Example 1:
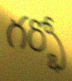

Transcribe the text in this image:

గర్భో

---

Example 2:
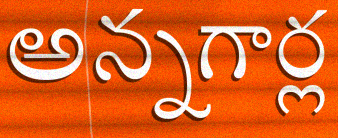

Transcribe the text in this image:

అన్నగార్ల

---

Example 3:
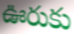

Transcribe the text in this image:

ఊరుకు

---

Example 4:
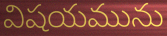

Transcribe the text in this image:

విషయమును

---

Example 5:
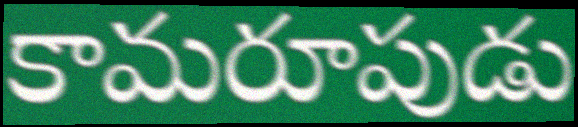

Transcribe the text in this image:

కామరూపుడు